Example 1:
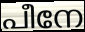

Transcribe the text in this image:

പീനേ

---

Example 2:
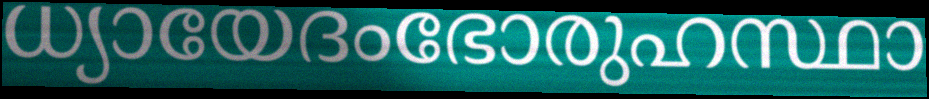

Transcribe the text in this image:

ധ്യായേദംഭോരുഹസ്ഥാ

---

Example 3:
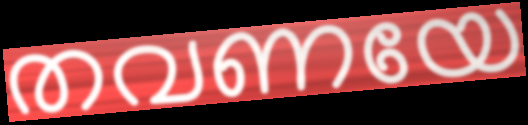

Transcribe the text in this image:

തവണയേ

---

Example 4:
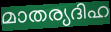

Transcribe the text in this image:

മാതര്യദിഹ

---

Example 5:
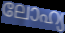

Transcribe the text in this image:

ലോഹ്യ